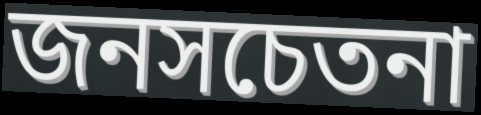
জনসচেতনা